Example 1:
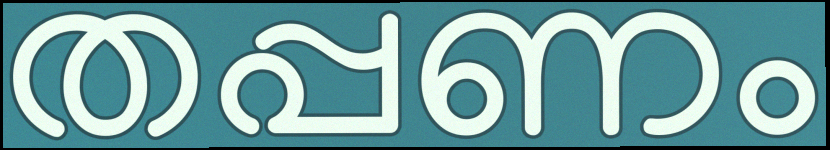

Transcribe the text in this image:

തപ്പണം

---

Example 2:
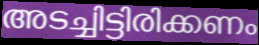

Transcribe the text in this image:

അടച്ചിട്ടിരിക്കണം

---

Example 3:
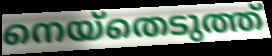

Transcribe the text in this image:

നെയ്തെടുത്ത്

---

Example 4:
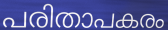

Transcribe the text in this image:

പരിതാപകരം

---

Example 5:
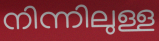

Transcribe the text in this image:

നിന്നിലുള്ള